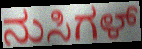
ನುಸಿಗಳ್